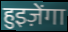
हुइज़ेंगा